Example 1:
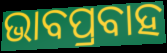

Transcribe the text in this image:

ଭାବପ୍ରବାହ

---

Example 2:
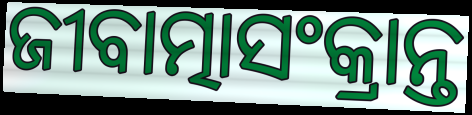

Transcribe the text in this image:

ଜୀବାତ୍ମାସଂକ୍ରାନ୍ତ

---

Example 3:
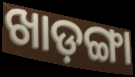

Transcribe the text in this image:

ଖାଡ଼ଙ୍ଗା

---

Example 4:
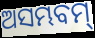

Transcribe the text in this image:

ଅସମ୍ଭବମ୍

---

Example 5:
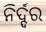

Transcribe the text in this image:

ନିର୍ଦ୍ଦର